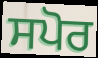
ਸਪੋਰ